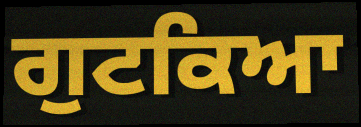
ਗੁਟਕਿਆ